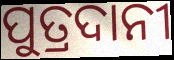
ପୁତ୍ରଦାନୀ